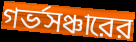
গর্ভসঞ্চারের